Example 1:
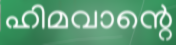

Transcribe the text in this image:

ഹിമവാന്റെ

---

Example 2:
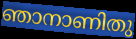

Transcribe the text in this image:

ഞാനാണിതു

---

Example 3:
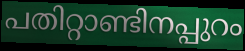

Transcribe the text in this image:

പതിറ്റാണ്ടിനപ്പുറം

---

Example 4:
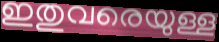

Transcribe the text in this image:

ഇതുവരെയുള്ള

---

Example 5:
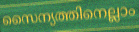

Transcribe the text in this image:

സൈന്യത്തിനെല്ലാം